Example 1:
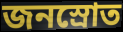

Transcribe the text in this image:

জনস্রোত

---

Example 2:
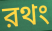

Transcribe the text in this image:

রথং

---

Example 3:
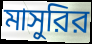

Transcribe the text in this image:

মাসুরির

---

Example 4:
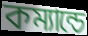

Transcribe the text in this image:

কম্যান্ডে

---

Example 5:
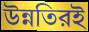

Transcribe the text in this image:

উন্নতিরই